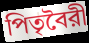
পিতৃবৈরী